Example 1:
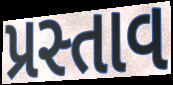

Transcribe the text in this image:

પ્રસ્તાવ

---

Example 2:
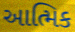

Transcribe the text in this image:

આત્મિક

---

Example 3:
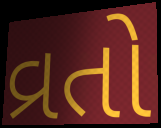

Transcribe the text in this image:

વ્રતો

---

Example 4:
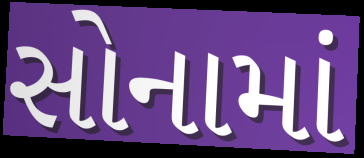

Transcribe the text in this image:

સોનામાં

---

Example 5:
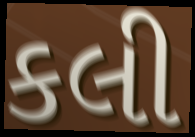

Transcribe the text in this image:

કલી